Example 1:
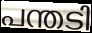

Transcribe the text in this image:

പന്തടി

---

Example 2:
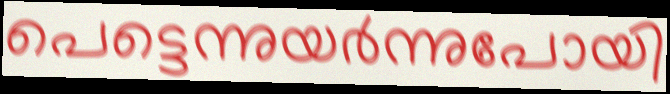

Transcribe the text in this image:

പെട്ടെന്നുയർന്നുപോയി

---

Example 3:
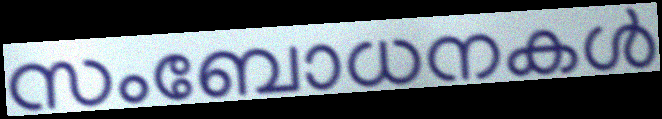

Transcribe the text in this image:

സംബോധനകൾ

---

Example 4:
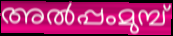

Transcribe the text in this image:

അൽപ്പംമുമ്പ്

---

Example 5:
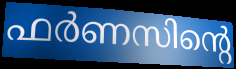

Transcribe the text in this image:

ഫർണസിന്റെ